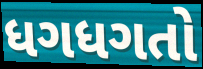
ધગધગતો